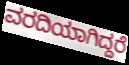
ವರದಿಯಾಗಿದ್ದರೆ